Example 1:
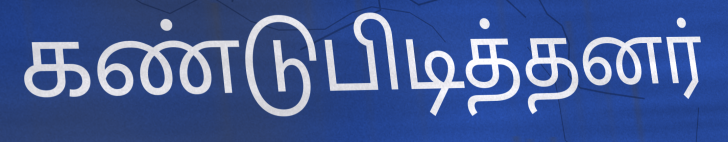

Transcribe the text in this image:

கண்டுபிடித்தனர்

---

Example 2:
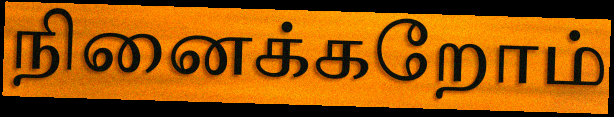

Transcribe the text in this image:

நினைக்கறோம்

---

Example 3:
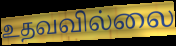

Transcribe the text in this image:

உதவவில்லை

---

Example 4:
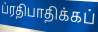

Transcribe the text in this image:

ப்ரதிபாதிக்கப்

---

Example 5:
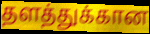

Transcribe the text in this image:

தளத்துக்கான